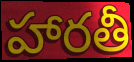
హారతీ